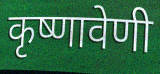
कृष्णावेणी